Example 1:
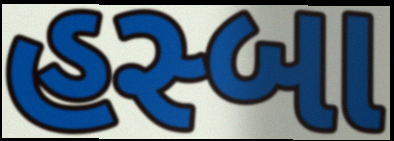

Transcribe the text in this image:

હસ્બા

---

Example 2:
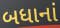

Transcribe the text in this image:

બધાનાં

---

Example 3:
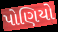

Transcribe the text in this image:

પોણિયો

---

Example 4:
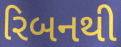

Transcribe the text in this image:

રિબનથી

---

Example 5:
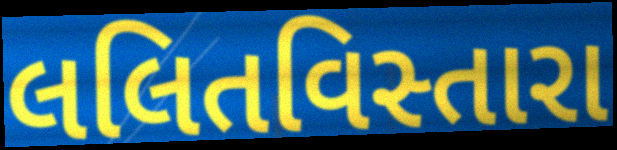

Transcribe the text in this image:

લલિતવિસ્તારા